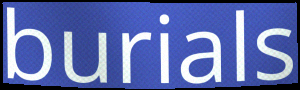
burials